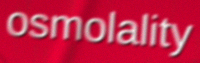
osmolality